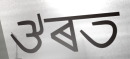
ঔৰত